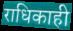
राधिकाही